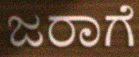
ಜರಾಗೆ